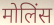
मोलिंस